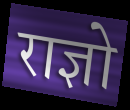
राज्ञो